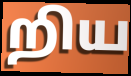
றிய